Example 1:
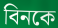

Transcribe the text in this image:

বিনকে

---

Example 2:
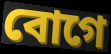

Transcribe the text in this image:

বোগে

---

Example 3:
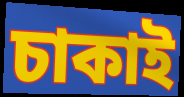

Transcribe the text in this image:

চাকাই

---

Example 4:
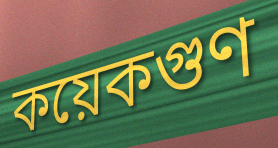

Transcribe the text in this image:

কয়েকগুণ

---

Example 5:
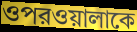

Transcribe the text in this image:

ওপরওয়ালাকে